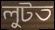
লুটত